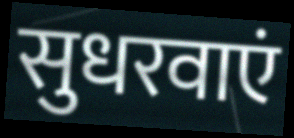
सुधरवाएं